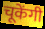
चूकेंगी